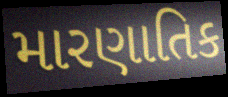
મારણાતિક